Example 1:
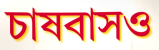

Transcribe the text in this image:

চাষবাসও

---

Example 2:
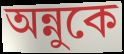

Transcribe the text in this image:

অন্নুকে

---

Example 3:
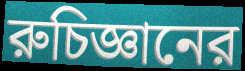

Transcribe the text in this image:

রুচিজ্ঞানের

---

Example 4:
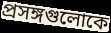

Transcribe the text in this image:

প্রসঙ্গগুলোকে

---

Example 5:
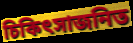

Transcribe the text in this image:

চিকিৎসাজনিত